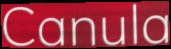
Canula